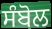
ਸੰਬੋਲ